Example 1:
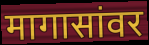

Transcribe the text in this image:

मागासांवर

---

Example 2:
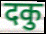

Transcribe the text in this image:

दकु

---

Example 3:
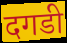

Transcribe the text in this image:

दगडी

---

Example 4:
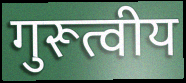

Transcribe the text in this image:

गुरूत्वीय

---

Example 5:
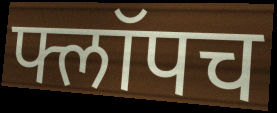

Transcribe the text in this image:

फ्लॉपच